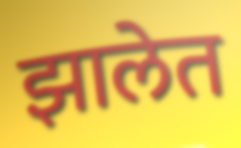
झालेत